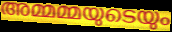
അമ്മമ്മയുടെയും